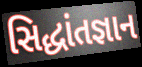
સિદ્ધાંતજ્ઞાન